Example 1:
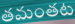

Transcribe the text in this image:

తమంతట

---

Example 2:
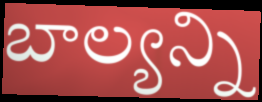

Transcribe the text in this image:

బాల్యన్ని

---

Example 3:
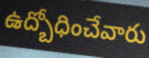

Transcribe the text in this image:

ఉద్బోధించేవారు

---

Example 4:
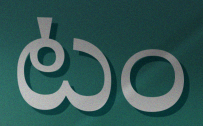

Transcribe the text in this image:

టం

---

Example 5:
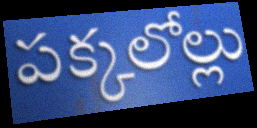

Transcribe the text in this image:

పక్కలోల్లు